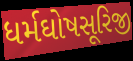
ધર્મઘોષસૂરિજી